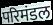
परिमंडल